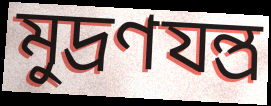
মুদ্রণযন্ত্র